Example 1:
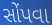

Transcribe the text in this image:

સોંપવા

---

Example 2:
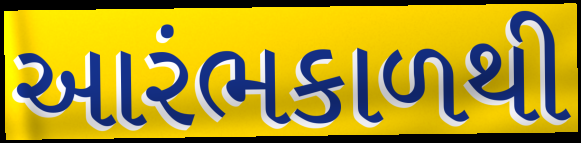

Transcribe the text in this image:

આરંભકાળથી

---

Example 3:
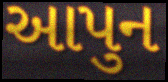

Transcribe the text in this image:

આપુન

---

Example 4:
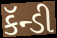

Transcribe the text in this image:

કૅન્ડી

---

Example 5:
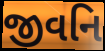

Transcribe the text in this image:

જીવનિ